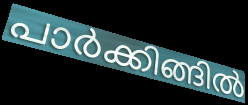
പാർക്കിങ്ങിൽ